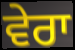
ਵੇਰਾ